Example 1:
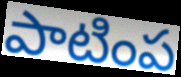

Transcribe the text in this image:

పాటింప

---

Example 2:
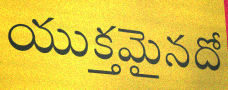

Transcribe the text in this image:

యుక్తమైనదో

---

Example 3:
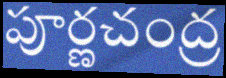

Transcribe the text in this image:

పూర్ణచంద్ర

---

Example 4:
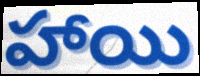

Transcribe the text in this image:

హాయి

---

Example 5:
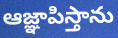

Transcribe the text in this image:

ఆజ్ఞాపిస్తాను